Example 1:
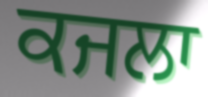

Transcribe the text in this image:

ਕਜਲਾ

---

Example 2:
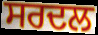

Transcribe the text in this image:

ਸਰਦਲ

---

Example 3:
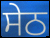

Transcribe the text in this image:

ਸੇਠ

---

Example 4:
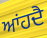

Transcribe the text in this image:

ਆਂਹਦੈ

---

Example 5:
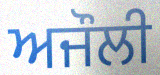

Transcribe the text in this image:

ਅਜੌਲੀ